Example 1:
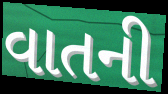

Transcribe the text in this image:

વાતની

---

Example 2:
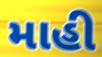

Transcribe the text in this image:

માહી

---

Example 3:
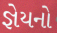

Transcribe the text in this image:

જ્ઞેયનો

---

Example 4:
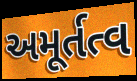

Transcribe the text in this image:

અમૂર્તત્વ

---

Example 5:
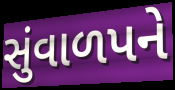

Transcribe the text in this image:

સુંવાળપને